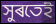
সুৰতেই